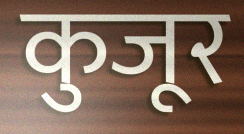
कुजूर